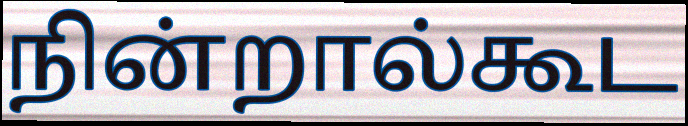
நின்றால்கூட